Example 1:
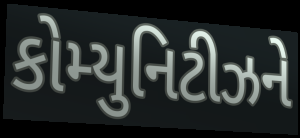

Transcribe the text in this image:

કોમ્યુનિટીઝને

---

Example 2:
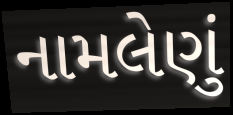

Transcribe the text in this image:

નામલેણું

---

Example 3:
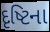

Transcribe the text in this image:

દૃષ્ટિના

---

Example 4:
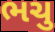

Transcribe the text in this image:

ભચુ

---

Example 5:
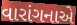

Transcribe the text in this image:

વારાંગનાએ